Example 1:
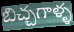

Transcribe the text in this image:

బిచ్చగాళ్ళ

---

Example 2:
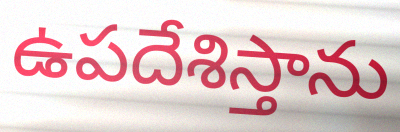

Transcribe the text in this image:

ఉపదేశిస్తాను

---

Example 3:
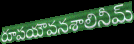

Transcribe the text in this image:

రూపయౌవనశాలినీమ్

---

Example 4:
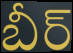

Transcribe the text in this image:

బీర్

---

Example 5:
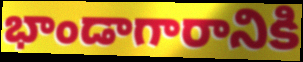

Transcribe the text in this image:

భాండాగారానికి